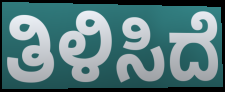
ತಿಳಿಸಿದೆ